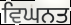
ਵਿਘਨਤ